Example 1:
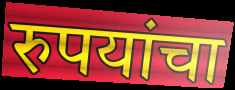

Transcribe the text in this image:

रुपयांचा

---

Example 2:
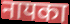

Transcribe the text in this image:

नायका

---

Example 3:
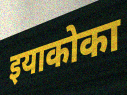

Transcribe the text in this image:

इयाकोका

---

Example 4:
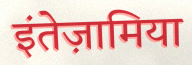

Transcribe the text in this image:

इंतेज़ामिया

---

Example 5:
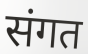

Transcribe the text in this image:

संगत